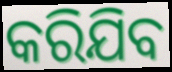
କରିଯିବ